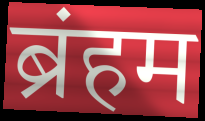
ब्रंहम